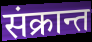
संक्रान्त